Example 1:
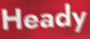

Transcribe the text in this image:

Heady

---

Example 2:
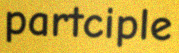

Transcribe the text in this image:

partciple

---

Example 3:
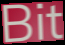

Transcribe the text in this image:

Bit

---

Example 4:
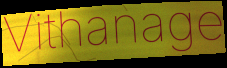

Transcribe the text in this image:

Vithanage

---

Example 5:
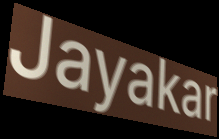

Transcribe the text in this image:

Jayakar